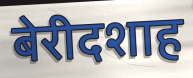
बेरीदशाह